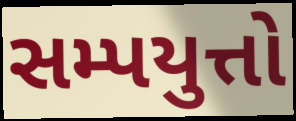
સમ્પયુત્તો